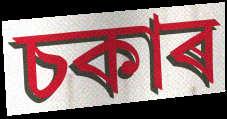
চকাৰ